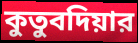
কুতুবদিয়ার